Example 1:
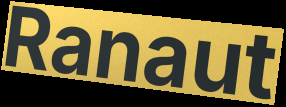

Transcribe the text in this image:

Ranaut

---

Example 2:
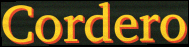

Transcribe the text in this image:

Cordero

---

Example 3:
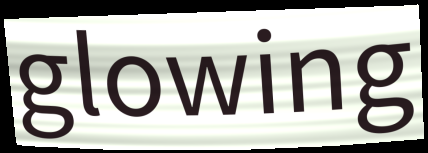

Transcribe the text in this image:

glowing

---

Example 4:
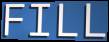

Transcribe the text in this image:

FILL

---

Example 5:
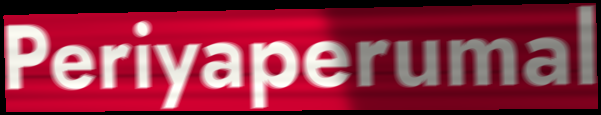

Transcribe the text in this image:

Periyaperumal